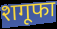
शगूफा